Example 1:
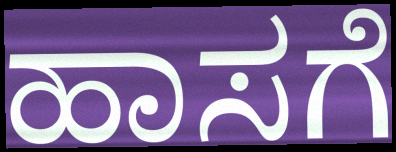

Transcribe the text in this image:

ಹಾಸಗೆ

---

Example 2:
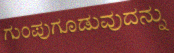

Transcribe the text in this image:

ಗುಂಪುಗೂಡುವುದನ್ನು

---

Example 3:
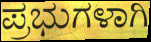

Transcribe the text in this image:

ಪ್ರಭುಗಳಾಗಿ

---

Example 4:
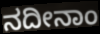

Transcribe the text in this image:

ನದೀನಾಂ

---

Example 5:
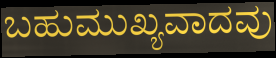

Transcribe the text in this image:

ಬಹುಮುಖ್ಯವಾದವು